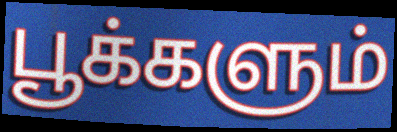
பூக்களும்